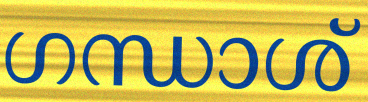
ഗന്ധാശ്